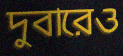
দুবারেও